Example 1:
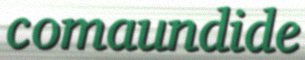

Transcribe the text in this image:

comaundide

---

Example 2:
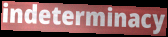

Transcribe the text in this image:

indeterminacy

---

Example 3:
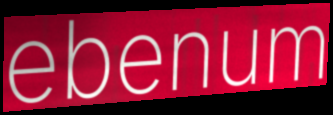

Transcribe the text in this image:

ebenum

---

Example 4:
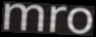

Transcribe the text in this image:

mro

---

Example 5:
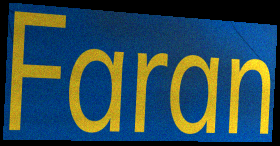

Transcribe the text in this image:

Faran